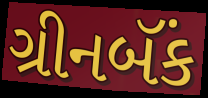
ગ્રીનબૅંક